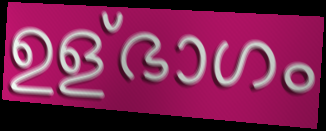
ഉള്ഭാഗം